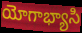
యోగాభ్యాసి